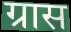
ग्रास